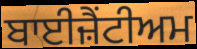
ਬਾਈਜ਼ੈਂਟੀਅਮ